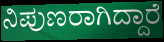
ನಿಪುಣರಾಗಿದ್ದಾರೆ